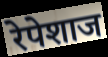
रेपेशाज